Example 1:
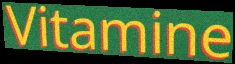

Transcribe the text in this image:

Vitamine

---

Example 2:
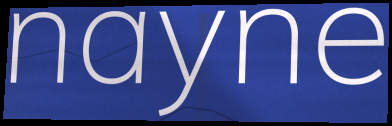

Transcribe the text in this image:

nayne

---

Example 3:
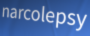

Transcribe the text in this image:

narcolepsy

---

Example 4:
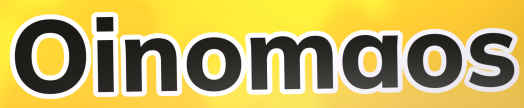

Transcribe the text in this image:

Oinomaos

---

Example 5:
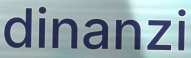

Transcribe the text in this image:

dinanzi